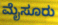
ಮೈಸೂರು